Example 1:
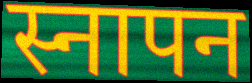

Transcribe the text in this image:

स्नापन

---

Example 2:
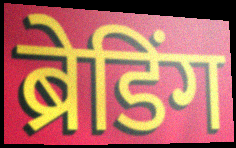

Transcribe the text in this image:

ब्रेडिंग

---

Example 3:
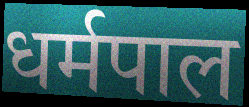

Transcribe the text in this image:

धर्मपाल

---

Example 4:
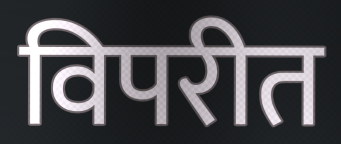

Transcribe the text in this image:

विपरीत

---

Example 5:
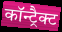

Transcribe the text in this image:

कॉन्ट्रैक्ट